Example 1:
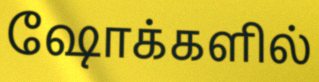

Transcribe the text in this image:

ஷோக்களில்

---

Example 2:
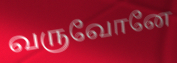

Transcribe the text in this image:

வருவோனே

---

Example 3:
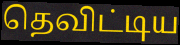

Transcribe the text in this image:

தெவிட்டிய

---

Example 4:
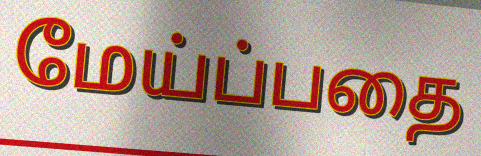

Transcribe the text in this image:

மேய்ப்பதை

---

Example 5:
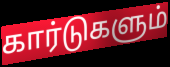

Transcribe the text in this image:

கார்டுகளும்